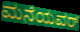
ಮನೆಯವರ್